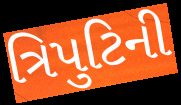
ત્રિપુટિની